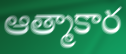
ఆత్మాకార